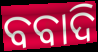
ବବାଦି